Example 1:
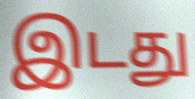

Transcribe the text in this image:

இடது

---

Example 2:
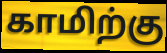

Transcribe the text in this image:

காமிற்கு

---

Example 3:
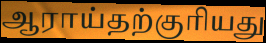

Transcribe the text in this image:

ஆராய்தற்குரியது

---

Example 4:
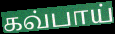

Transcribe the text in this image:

கவ்பாய்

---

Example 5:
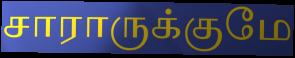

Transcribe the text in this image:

சாராருக்குமே